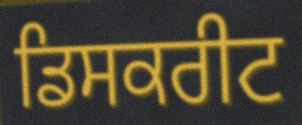
ਡਿਸਕਰੀਟ